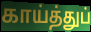
காய்த்துப்